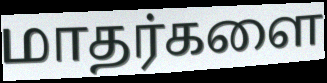
மாதர்களை